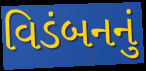
વિડંબનનું